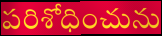
పరిశోధించును